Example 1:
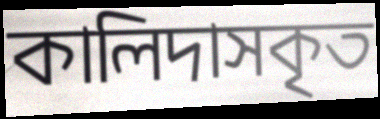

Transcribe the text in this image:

কালিদাসকৃত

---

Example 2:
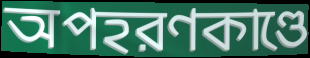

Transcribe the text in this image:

অপহরণকাণ্ডে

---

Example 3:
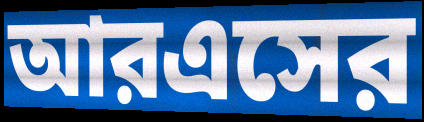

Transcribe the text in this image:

আরএসের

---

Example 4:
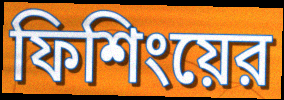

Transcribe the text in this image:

ফিশিংয়ের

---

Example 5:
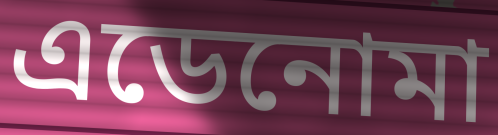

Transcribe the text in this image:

এডেনোমা